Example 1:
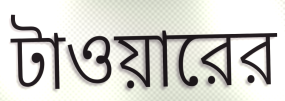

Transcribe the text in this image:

টাওয়ারের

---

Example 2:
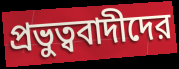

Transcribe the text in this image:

প্রভুত্ববাদীদের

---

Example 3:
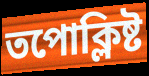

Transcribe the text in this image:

তপোক্লিষ্ট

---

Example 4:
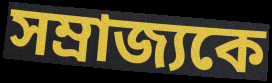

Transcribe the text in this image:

সম্রাজ্যকে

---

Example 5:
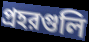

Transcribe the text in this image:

প্রহরগুলি